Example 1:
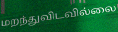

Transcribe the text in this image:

மறந்துவிடவில்லை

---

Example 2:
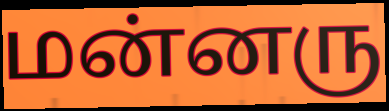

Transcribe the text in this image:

மன்னரு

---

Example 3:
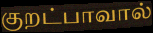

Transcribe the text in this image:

குறட்பாவால்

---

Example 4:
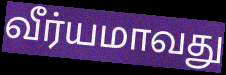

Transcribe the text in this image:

வீர்யமாவது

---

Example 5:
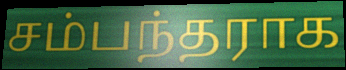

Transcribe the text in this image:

சம்பந்தராக